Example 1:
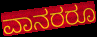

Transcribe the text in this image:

ವಾನರರೂ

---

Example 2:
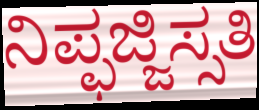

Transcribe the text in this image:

ನಿಪ್ಫಜ್ಜಿಸ್ಸತಿ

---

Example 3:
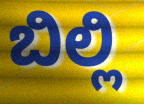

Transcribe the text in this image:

ಬಿಲ್ಲಿ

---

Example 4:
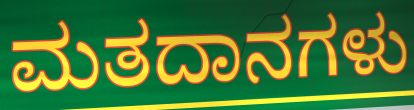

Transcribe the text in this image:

ಮತದಾನಗಳು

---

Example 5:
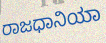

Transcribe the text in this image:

ರಾಜಧಾನಿಯಾ